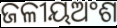
ଜଳୀୟଅଂଶ